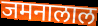
जमनालाल